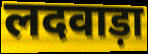
लदवाड़ा